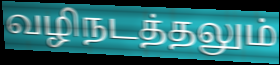
வழிநடத்தலும்